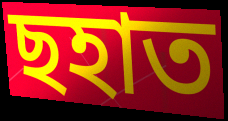
ছহাত